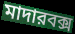
মাদারবক্স